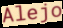
Alejo